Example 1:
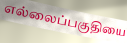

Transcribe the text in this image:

எல்லைப்பகுதியை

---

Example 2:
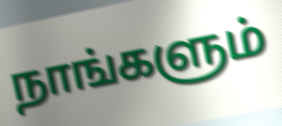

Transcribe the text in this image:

நாங்களும்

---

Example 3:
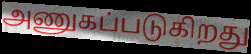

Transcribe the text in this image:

அணுகப்படுகிறது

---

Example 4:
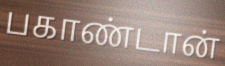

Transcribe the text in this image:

பகாண்டான்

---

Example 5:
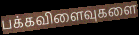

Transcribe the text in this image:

பக்கவிளைவுகளை